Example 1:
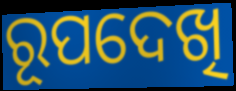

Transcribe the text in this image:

ରୂପଦେଖି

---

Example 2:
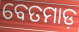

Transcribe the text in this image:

ବେତମାଡ଼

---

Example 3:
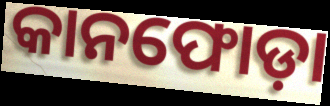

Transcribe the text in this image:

କାନଫୋଡ଼ା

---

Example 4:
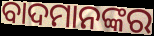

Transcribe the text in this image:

ବାଦମାନଙ୍କର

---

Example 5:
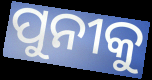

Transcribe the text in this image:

ପୁନୀକୁ